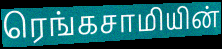
ரெங்கசாமியின்